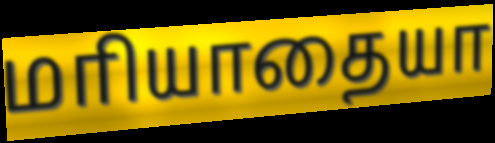
மரியாதையா